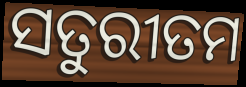
ସତୁରୀତମ